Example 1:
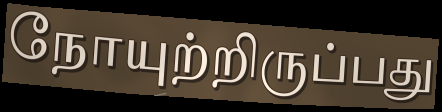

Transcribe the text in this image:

நோயுற்றிருப்பது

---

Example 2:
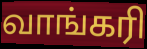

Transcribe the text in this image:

வாங்கரி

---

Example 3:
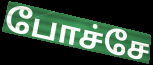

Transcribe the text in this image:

போச்சே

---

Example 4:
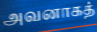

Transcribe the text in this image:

அவனாகத்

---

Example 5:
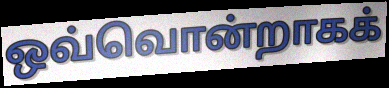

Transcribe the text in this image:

ஒவ்வொன்றாகக்